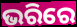
ଭରିରେ